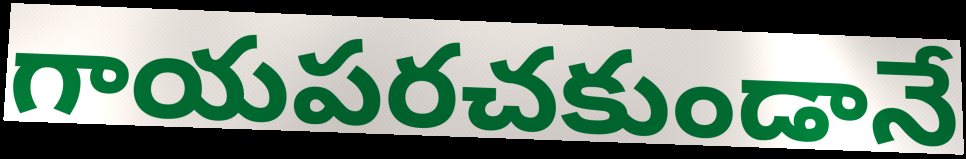
గాయపరచకుండానే